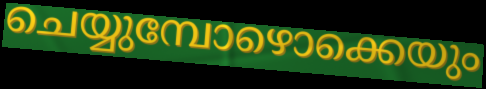
ചെയ്യുമ്പോഴൊക്കെയും